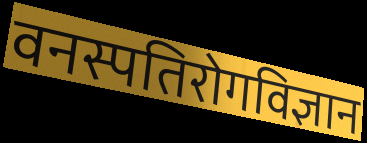
वनस्पतिरोगविज्ञान